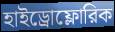
হাইড্রোফ্লোরিক